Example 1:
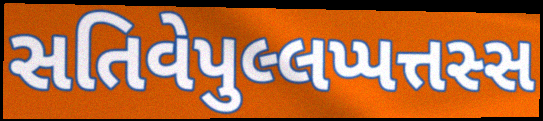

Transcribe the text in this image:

સતિવેપુલ્લપ્પત્તસ્સ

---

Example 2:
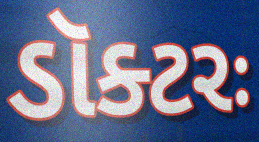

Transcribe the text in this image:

ડૉક્ટરઃ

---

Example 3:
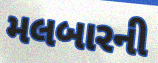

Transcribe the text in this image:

મલબારની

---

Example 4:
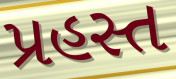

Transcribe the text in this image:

પ્રહસ્ત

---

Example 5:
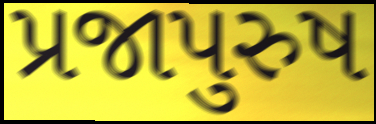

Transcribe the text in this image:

પ્રજાપુરુષ